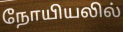
நோயியலில்